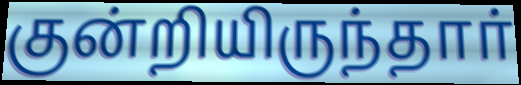
குன்றியிருந்தார்